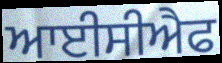
ਆਈਸੀਐਫ